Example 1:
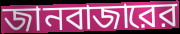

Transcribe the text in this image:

জানবাজারের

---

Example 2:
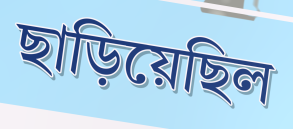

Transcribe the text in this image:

ছাড়িয়েছিল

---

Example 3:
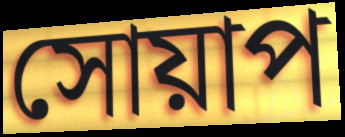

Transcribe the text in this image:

সোয়াপ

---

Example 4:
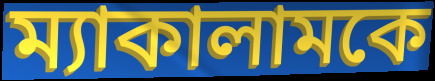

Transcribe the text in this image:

ম্যাকালামকে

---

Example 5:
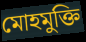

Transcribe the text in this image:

মোহমুক্তি